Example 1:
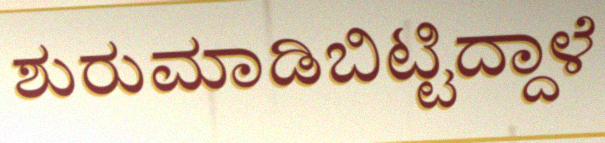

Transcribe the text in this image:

ಶುರುಮಾಡಿಬಿಟ್ಟಿದ್ದಾಳೆ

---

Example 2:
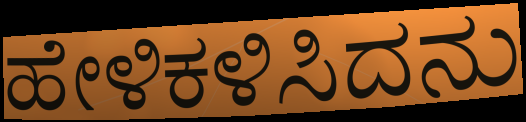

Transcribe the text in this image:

ಹೇಳಿಕಳಿಸಿದನು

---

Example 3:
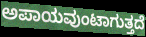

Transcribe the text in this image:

ಅಪಾಯವುಂಟಾಗುತ್ತದೆ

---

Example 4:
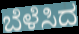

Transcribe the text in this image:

ಬೆಳೆಸಿದ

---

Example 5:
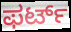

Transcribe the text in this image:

ಫರ್ಟ್